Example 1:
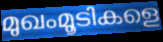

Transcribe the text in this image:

മുഖംമൂടികളെ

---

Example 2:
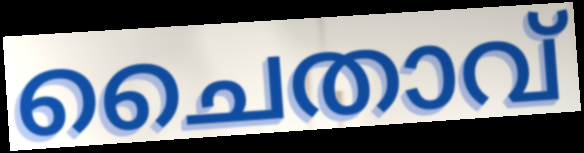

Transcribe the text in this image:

ചൈതാവ്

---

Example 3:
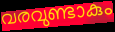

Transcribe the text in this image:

വരവുണ്ടാകും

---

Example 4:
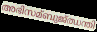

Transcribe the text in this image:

അഭിസമ്ബുജ്ഝന്തി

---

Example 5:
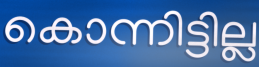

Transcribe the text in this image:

കൊന്നിട്ടില്ല